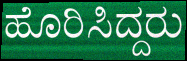
ಹೊರಿಸಿದ್ದರು